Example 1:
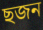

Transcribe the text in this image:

ছজন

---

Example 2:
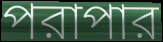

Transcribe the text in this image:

পরাপার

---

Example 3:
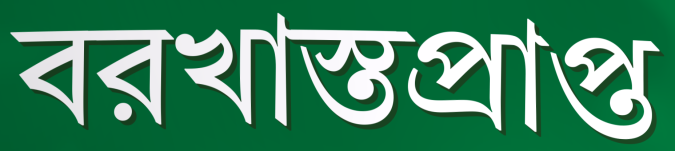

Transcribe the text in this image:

বরখাস্তপ্রাপ্ত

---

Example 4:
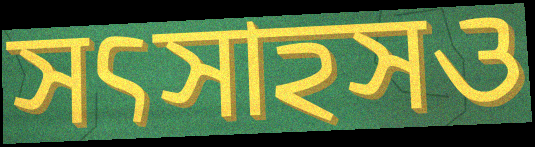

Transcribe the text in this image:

সৎসাহসও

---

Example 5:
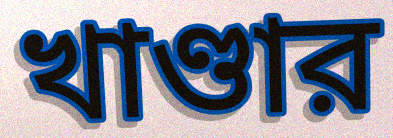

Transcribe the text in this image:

খাণ্ডার